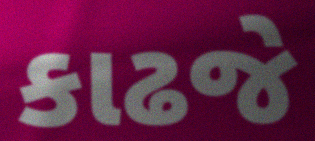
કાઢજે